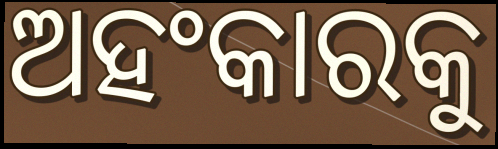
ଅହଂକାରକୁ